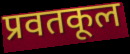
प्रवतकूल